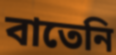
বাতেনি